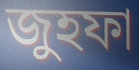
জুহফা